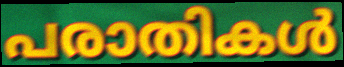
പരാതികൾ